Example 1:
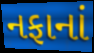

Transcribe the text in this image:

નફાનાં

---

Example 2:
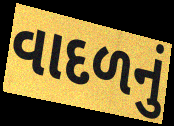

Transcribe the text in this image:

વાદળનું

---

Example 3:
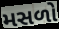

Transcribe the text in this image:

મસળો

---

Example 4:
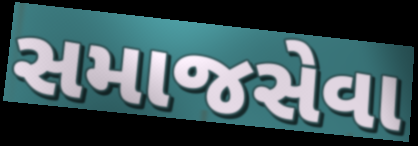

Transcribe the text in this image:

સમાજસેવા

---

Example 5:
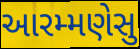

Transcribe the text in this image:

આરમ્મણેસુ